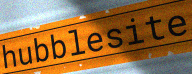
hubblesite